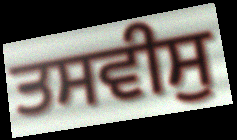
ਤਸਵੀਸੁ